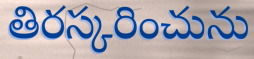
తిరస్కరించును